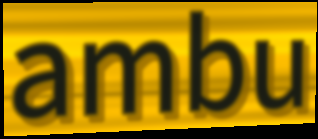
ambu